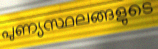
പുണ്യസ്ഥലങ്ങളുടെ